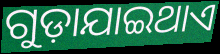
ଗୁଡ଼ାଯାଇଥାଏ